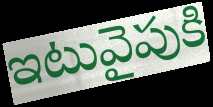
ఇటువైపుకి